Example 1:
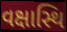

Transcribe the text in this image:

વક્ષાસ્થિ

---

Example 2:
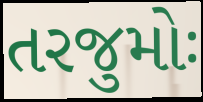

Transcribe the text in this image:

તરજુમોઃ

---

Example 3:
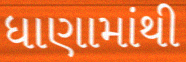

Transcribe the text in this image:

ધાણામાંથી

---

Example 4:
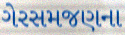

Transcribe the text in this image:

ગેરસમજણના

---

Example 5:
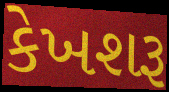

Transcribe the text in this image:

કેખશરૂ